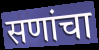
सणांचा